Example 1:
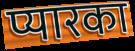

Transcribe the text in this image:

प्यारका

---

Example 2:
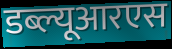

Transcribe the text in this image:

डब्ल्यूआरएस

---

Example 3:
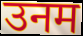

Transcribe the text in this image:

उनम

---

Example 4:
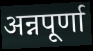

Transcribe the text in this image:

अन्नपूर्णा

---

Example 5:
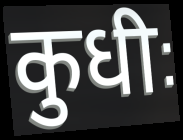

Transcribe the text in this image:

कुधीः